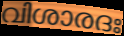
വിശാരദഃ